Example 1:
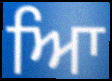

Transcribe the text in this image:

ਆਿ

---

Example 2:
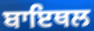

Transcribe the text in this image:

ਬਾਇਥਲ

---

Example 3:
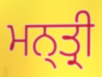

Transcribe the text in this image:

ਮਨ੍ਤ੍ਰੀ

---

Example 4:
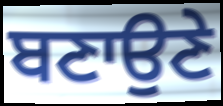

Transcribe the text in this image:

ਬਣਾਉਣੇ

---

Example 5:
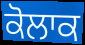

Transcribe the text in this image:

ਕੋਲਾਕ